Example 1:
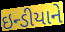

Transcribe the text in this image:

ઇન્ડીયાને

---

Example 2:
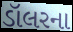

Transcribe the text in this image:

ડૉલરના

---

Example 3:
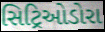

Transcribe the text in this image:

સિટ્રિઓડોરા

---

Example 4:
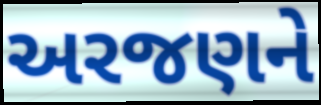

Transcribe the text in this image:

અરજણને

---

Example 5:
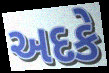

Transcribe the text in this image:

અદકે